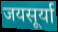
जयसूर्या